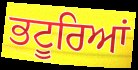
ਭਟੂਰਿਆਂ